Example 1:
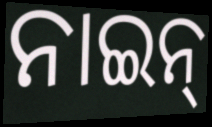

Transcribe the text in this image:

ନାଇନ୍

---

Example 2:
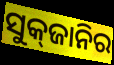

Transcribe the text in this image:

ସୁକ୍‌ଜାନିର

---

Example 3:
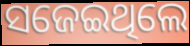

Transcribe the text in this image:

ସଜେଇଥିଲେ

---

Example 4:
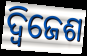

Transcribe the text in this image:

ଦ୍ୱିଜେଶ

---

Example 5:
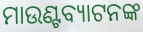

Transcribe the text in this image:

ମାଉଣ୍ଟବ୍ୟାଟନଙ୍କ